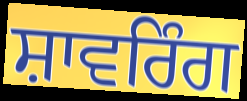
ਸ਼ਾਵਰਿੰਗ